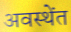
अवस्थेंत